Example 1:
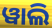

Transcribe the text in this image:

ୱାଲି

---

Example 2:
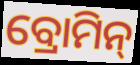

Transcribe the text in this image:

ବ୍ରୋମିନ୍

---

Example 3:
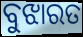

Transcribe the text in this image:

ବୁଝାରତ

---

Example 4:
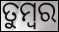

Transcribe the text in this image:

ତୁମ୍ବର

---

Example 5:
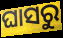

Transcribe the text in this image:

ଘାସରୁ